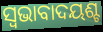
ସ୍ଵଭାବାଦୟଶ୍ଚ